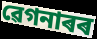
ৱেগনাৰৰ